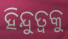
ହିନ୍ଦୁତ୍ୱକୁ